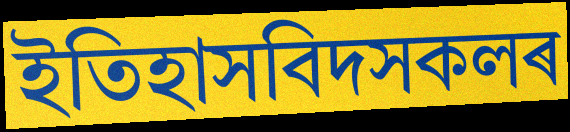
ইতিহাসবিদসকলৰ